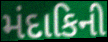
મંદાકિની